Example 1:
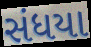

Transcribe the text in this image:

સંધયા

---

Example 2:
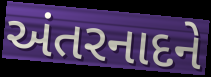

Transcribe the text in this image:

અંતરનાદને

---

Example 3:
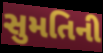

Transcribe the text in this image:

સુમતિની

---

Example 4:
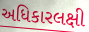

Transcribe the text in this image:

અધિકારલક્ષી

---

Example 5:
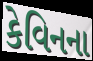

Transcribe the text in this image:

કેવિનના